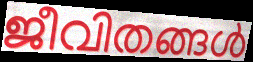
ജീവിതങ്ങൾ